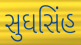
સુઘસિંહ